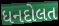
ધનદોલત